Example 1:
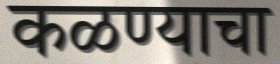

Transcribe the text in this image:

कळण्याचा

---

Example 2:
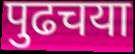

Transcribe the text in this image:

पुढचया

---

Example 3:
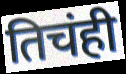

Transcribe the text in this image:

तिचंही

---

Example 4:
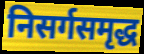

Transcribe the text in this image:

निसर्गसमृद्ध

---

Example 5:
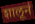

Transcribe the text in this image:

शालूनं